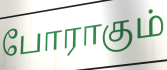
போராகும்